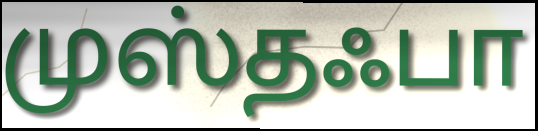
முஸ்தஃபா